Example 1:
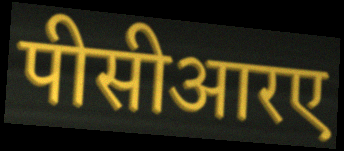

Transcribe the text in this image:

पीसीआरए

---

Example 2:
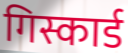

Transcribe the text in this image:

गिस्कार्ड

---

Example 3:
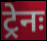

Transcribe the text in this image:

ट्रेनः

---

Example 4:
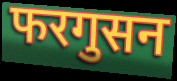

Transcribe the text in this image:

फरगुसन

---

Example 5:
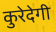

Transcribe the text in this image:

कुरेदेगी